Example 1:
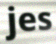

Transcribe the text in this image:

jes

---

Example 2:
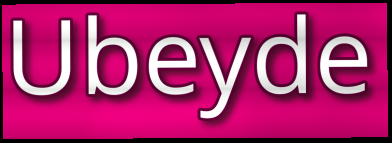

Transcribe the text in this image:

Ubeyde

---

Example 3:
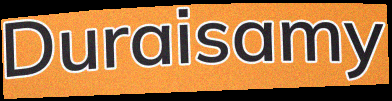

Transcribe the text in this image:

Duraisamy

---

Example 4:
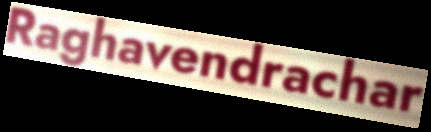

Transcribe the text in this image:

Raghavendrachar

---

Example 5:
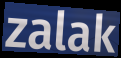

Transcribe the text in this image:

zalak